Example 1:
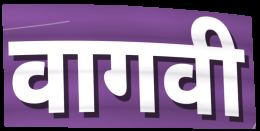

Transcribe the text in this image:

वागवी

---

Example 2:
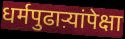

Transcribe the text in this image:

धर्मपुढाऱ्‍यांपेक्षा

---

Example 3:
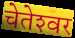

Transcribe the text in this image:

चेतेश्वर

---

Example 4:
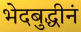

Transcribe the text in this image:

भेदबुद्धीनं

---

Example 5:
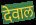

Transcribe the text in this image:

देवाल